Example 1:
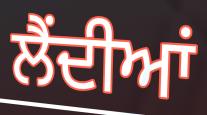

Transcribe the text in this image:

ਲੈਂਦੀਆਂ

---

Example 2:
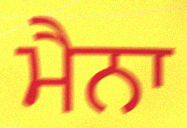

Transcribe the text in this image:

ਮੈਨਾ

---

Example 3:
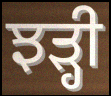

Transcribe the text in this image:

ਝੜ੍ਹੀ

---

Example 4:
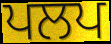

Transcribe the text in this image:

ਪਲਪ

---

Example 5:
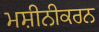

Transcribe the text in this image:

ਮਸ਼ੀਨੀਕਰਨ